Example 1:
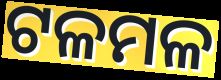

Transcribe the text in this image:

ଟଳମଳ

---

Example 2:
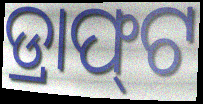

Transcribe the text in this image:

ଡ୍ରାଫ୍‌ଟ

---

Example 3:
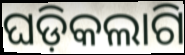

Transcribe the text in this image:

ଘଡ଼ିକଲାଗି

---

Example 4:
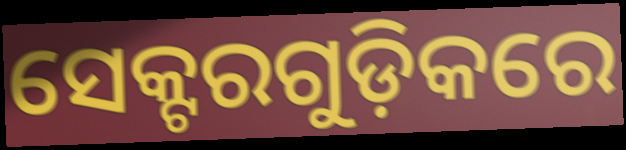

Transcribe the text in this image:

ସେକ୍ଟରଗୁଡ଼ିକରେ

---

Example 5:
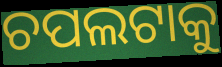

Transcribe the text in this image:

ଚପଲଟାକୁ